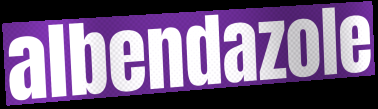
albendazole